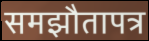
समझौतापत्र